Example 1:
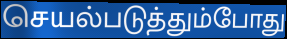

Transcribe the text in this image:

செயல்படுத்தும்போது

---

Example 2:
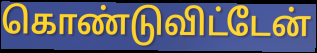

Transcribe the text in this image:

கொண்டுவிட்டேன்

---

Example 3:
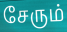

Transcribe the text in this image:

சேரும்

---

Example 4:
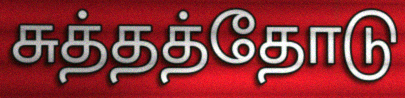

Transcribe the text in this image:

சுத்தத்தோடு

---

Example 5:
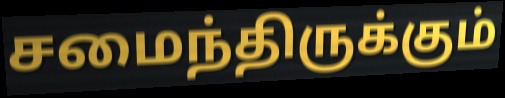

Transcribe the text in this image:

சமைந்திருக்கும்